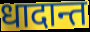
धादान्त